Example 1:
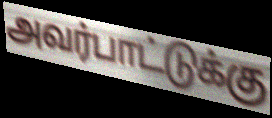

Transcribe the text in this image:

அவர்பாட்டுக்கு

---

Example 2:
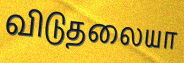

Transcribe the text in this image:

விடுதலையா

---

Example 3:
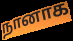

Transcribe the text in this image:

நானாக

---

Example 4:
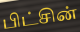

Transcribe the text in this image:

பிட்சின்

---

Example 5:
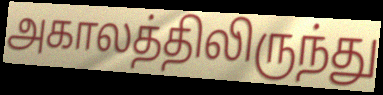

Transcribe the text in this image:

அகாலத்திலிருந்து